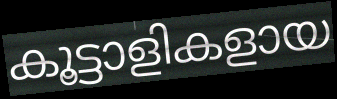
കൂട്ടാളികളായ